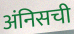
अंनिसची